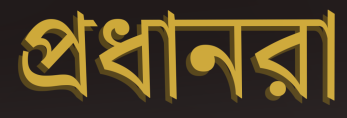
প্রধানরা